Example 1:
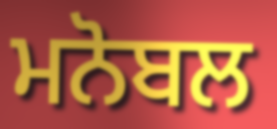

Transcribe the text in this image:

ਮਨੋਬਲ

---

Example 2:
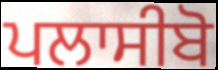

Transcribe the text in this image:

ਪਲਾਸੀਬੋ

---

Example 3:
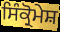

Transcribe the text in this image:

ਸਿੰਕ੍ਰੋਮੇਸ਼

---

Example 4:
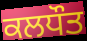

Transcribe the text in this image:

ਕਲਧੌਤ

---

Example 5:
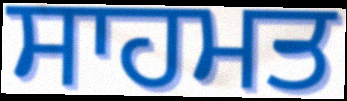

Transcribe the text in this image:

ਸਾਹਮਤ